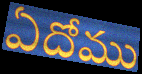
ఏదోము